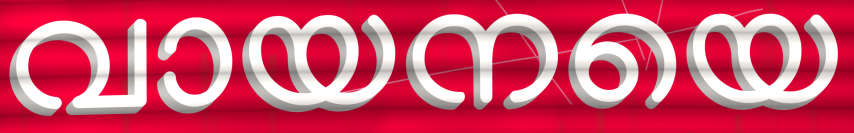
വായനയെ